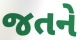
જતને